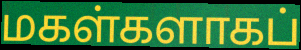
மகள்களாகப்